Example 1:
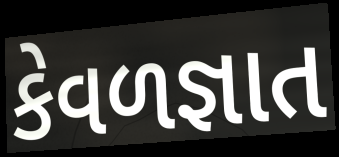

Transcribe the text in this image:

કેવળજ્ઞાત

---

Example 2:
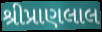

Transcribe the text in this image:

શ્રીપ્રાણલાલ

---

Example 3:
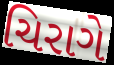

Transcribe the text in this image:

ચિરાગે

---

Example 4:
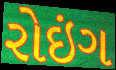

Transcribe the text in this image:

રોઇંગ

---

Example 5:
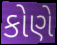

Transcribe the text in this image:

કોણે